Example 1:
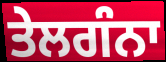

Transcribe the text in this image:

ਤੇਲਗੰਨਾ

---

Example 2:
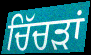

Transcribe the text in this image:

ਚਿੱਚੜਾਂ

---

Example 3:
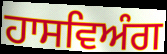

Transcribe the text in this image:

ਹਾਸਵਿਅੰਗ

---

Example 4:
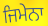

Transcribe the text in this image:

ਜਿਮੇਨਾ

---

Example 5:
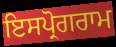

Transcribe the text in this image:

ਇਸਪ੍ਰੋਗਰਾਮ